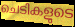
ചെടികളുടെ